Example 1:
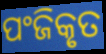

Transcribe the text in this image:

ପଂଜିକୃତ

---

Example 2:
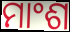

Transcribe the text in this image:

ମାଂଶ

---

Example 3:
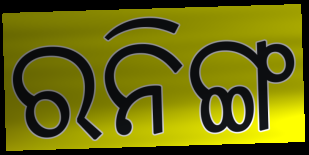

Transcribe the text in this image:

ରନିଙ୍ଗ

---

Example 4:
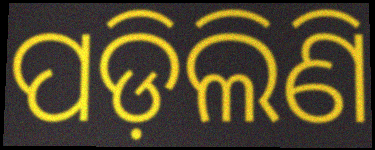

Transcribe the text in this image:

ପଡ଼ିଲିଣି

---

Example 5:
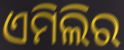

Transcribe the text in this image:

ଏମିଲିର